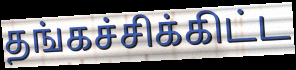
தங்கச்சிக்கிட்ட